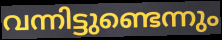
വന്നിട്ടുണ്ടെന്നും